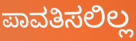
ಪಾವತಿಸಲಿಲ್ಲ